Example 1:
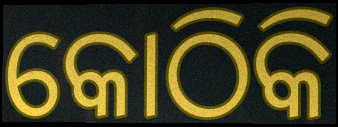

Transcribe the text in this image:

କୋଠିକି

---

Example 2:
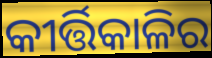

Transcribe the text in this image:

କୀର୍ତ୍ତିକାଳିର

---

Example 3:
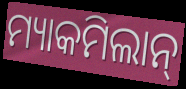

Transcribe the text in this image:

ମ୍ୟାକମିଲାନ୍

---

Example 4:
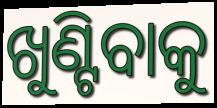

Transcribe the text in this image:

ଖୁଣ୍ଟିବାକୁ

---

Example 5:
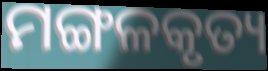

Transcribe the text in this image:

ମଙ୍ଗଳକୃତ୍ୟ